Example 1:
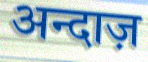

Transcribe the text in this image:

अन्दाज़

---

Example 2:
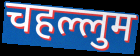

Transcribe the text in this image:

चहल्लुम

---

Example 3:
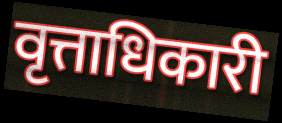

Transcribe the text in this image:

वृत्ताधिकारी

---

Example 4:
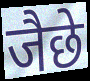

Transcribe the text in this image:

जैछे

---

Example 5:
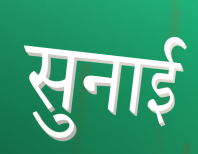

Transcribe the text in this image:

सुनाई